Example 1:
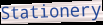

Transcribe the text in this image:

Stationery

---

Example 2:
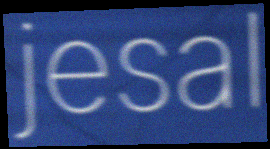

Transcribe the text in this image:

jesal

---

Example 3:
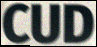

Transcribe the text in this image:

CUD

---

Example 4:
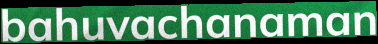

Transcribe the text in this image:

bahuvachanaman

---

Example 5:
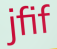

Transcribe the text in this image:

jfif